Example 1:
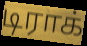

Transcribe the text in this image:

டிராக்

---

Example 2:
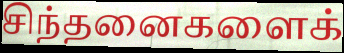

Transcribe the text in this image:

சிந்தனைகளைக்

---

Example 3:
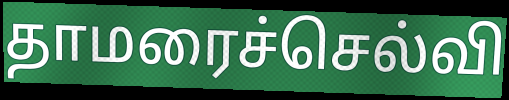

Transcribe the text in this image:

தாமரைச்செல்வி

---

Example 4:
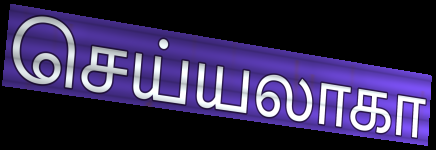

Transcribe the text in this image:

செய்யலாகா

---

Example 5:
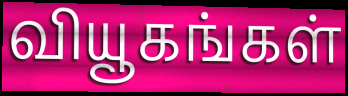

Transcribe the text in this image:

வியூகங்கள்